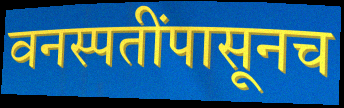
वनस्पतींपासूनच